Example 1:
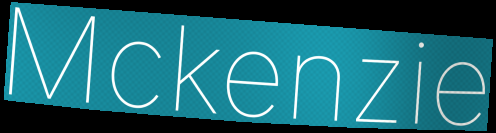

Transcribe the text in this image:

Mckenzie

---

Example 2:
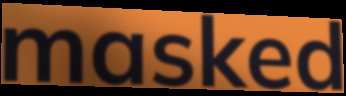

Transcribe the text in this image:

masked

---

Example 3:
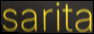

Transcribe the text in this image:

sarita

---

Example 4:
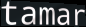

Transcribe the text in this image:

tamar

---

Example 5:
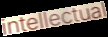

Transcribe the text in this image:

intellectual